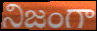
నిజంగా